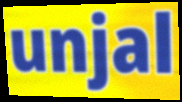
unjal